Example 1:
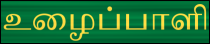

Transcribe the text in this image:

உழைப்பாளி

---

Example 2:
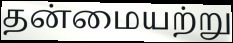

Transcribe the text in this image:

தன்மையற்று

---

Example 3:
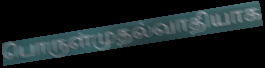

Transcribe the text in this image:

பொருள்முதல்வாதியாக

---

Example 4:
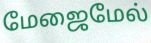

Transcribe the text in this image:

மேஜைமேல்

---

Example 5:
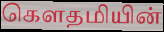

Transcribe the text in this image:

கெளதமியின்